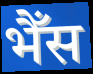
भैँस